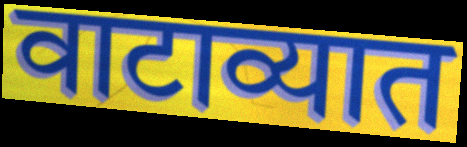
वाटाव्यात